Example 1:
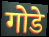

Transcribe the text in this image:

गोडे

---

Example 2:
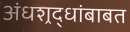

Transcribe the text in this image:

अंधश्रद्धांबाबत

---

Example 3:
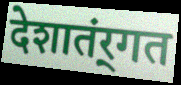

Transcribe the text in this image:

देशातंर्गत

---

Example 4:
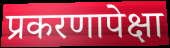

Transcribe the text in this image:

प्रकरणापेक्षा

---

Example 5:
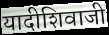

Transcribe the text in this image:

यादीशिवाजी